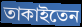
তাকাইতেন